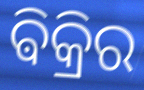
ଵିକ୍ରିର